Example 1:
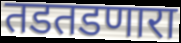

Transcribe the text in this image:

तडतडणारा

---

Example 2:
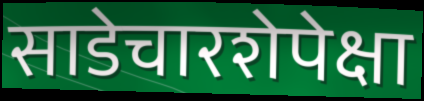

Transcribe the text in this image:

साडेचारशेपेक्षा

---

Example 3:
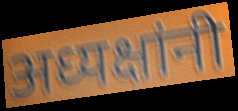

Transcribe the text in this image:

अध्यक्षांनी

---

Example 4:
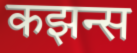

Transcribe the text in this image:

कझन्स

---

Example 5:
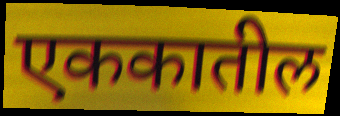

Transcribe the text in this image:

एककातील